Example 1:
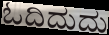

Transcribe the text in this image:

ಓದಿದುದು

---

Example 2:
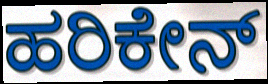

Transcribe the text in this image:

ಹರಿಕೇನ್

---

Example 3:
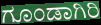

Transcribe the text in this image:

ಗೂಂಡಾಗಿರಿ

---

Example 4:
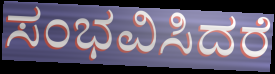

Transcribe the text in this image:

ಸಂಭವಿಸಿದರೆ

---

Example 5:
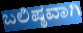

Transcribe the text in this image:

ಬಲಿಷ್ಠವಾಗಿ